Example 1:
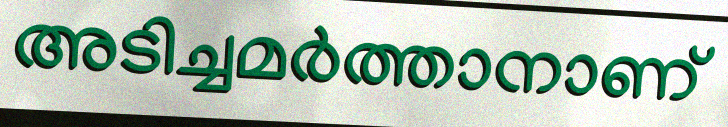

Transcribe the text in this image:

അടിച്ചമർത്താനാണ്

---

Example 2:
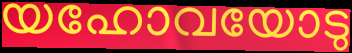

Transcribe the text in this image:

യഹോവയോടു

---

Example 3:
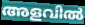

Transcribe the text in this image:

അളവിൽ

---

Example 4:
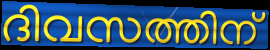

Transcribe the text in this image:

ദിവസത്തിന്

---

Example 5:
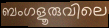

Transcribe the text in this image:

ബംഗളൂരുവിലെ